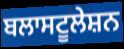
ਬਲਾਸਟੂਲੇਸ਼ਨ